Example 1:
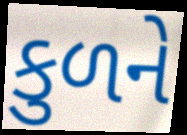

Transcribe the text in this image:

કુળને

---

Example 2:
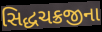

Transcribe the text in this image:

સિદ્ધચક્રજીના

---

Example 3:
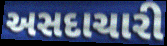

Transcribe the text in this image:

અસદાચારી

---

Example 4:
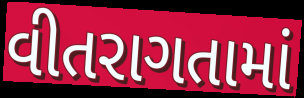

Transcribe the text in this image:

વીતરાગતામાં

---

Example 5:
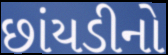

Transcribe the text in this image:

છાંયડીનો